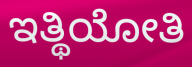
ಇತ್ಥಿಯೋತಿ